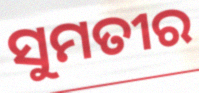
ସୁମତୀର